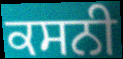
ਕਸਨੀ